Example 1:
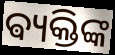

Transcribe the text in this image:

ଵ୍ୟକ୍ତିଙ୍କ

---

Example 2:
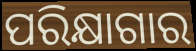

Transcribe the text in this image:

ପରିକ୍ଷାଗାର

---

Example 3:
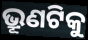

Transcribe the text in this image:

ଭ୍ରୂଣଟିକୁ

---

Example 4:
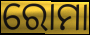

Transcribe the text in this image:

ରୋମା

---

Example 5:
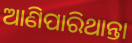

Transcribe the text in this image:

ଆଣିପାରିଥାନ୍ତା